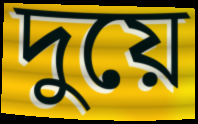
দুয়ে